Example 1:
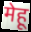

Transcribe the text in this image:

मेहू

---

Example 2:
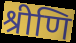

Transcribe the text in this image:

श्रीणि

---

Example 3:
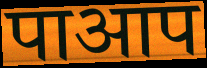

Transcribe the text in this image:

पाआप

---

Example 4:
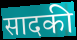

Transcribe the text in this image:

सादकी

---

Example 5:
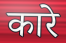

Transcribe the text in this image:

कारे